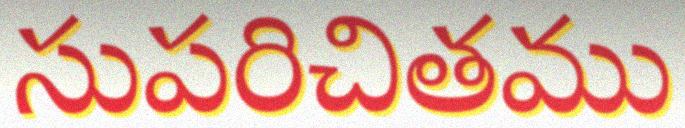
సుపరిచితము